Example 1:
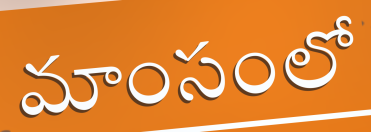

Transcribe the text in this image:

మాంసంలో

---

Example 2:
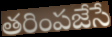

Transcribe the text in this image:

తరింపజేసే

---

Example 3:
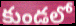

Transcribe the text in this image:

కుండలో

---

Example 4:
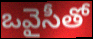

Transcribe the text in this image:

ఒవైసీతో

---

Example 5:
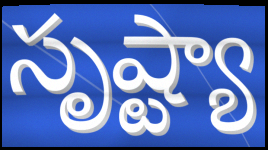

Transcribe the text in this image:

సృష్ట్యా